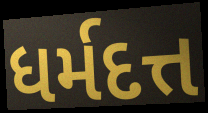
ધર્મદત્ત